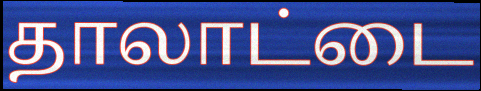
தாலாட்டை